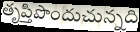
తృప్తిపొందుచున్నది